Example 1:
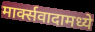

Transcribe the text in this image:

मार्क्सवादामध्ये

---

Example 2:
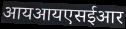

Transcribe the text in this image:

आयआयएसईआर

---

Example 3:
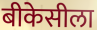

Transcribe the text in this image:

बीकेसीला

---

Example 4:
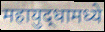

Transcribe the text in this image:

महायुद्धामध्ये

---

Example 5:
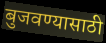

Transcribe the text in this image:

बुजवण्यासाठी